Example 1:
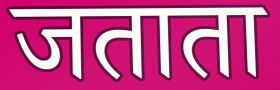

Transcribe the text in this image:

जताता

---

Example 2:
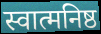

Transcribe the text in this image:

स्वात्मनिष्ठ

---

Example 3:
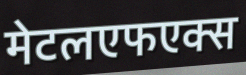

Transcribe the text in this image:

मेटलएफएक्स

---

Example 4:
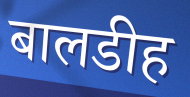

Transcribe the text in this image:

बालडीह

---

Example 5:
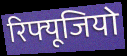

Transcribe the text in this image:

रिफ्यूजियो